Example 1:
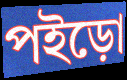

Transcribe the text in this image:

পইড়ো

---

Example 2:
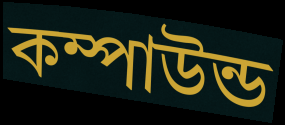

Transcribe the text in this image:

কম্পাউন্ড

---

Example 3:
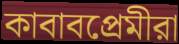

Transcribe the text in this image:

কাবাবপ্রেমীরা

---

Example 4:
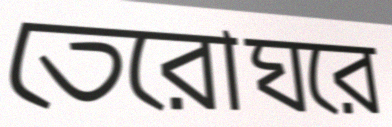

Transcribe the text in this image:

তেরোঘরে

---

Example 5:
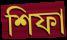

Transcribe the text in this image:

শিফা